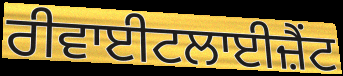
ਰੀਵਾਈਟਲਾਈਜ਼ੈਂਟ